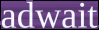
adwait